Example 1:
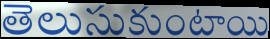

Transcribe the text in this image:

తెలుసుకుంటాయి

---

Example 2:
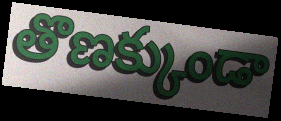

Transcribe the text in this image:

తొణక్కుండా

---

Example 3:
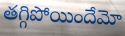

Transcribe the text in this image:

తగ్గిపోయిందేమో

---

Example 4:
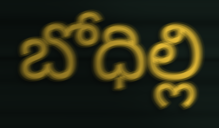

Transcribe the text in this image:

బోధిల్లి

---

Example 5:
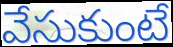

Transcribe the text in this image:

వేసుకుంటే